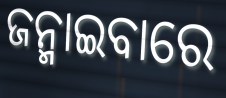
ଜନ୍ମାଇବାରେ